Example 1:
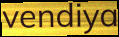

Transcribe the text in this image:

vendiya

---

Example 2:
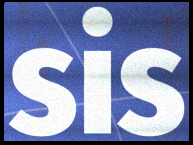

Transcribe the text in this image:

sis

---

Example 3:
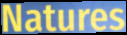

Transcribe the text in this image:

Natures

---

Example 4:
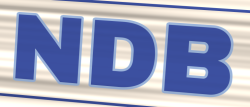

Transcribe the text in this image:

NDB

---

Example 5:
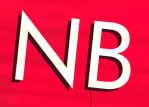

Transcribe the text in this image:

NB